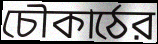
চৌকাঠের